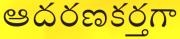
ఆదరణకర్తగా